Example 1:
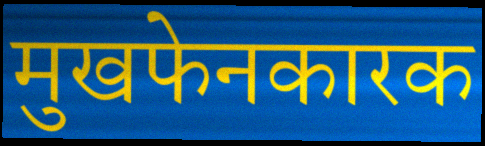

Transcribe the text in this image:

मुखफेनकारक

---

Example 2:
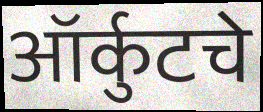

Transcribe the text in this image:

ऑर्कुटचे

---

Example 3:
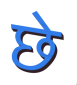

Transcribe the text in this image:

छे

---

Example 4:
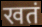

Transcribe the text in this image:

खतं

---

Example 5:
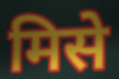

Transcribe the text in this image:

मिसे